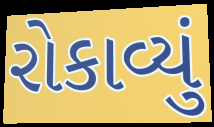
રોકાવ્યું